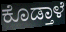
ಕೊಡ್ತಾಳೆ